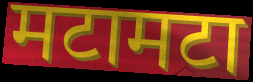
मटामटा